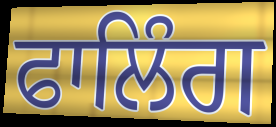
ਫਾਲਿੰਗ